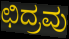
ಛಿದ್ರವು